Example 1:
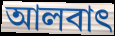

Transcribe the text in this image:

আলবাৎ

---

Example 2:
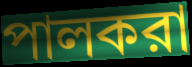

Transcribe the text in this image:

পালকরা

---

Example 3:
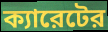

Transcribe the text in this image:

ক্যারেটের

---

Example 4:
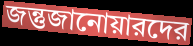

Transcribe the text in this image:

জন্তুজানোয়ারদের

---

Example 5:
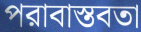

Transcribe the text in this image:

পরাবাস্তবতা